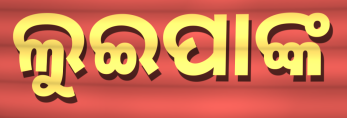
ଲୁଇପାଙ୍କ